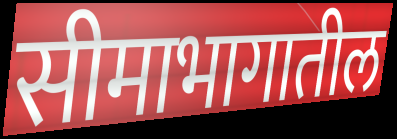
सीमाभागातील